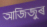
আজিজুৰ